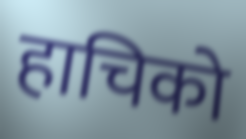
हाचिको